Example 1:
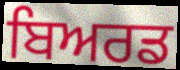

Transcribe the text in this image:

ਬਿਅਰਡ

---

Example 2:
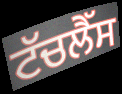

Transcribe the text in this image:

ਟੱਚਲੈੱਸ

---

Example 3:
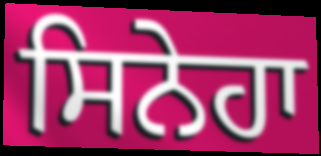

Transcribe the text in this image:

ਸਿਨੇਹਾ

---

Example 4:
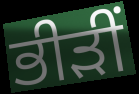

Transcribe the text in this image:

ਭੀੜੀਂ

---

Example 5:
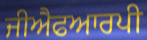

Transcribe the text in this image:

ਜੀਐਫਆਰਪੀ